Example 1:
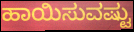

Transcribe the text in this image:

ಹಾಯಿಸುವಷ್ಟು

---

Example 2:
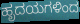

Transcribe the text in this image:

ಹೃದಯಗಳಿಂದ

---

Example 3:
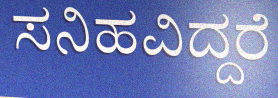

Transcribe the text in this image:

ಸನಿಹವಿದ್ದರೆ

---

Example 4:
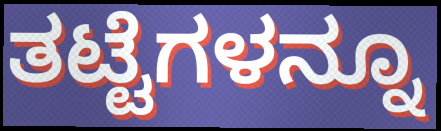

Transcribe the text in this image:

ತಟ್ಟೆಗಳನ್ನೂ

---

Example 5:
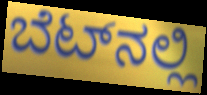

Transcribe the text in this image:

ಬೆಟ್‌ನಲ್ಲಿ